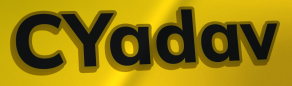
CYadav